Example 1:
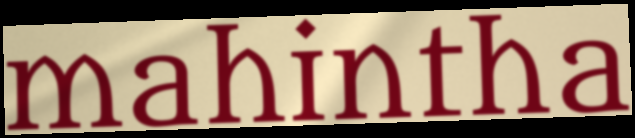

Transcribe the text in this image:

mahintha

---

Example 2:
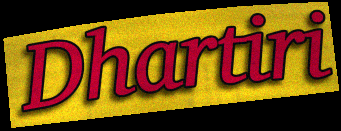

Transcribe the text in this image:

Dhartiri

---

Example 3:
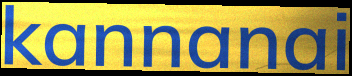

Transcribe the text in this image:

kannanai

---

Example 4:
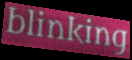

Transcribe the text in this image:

blinking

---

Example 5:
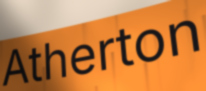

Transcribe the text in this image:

Atherton